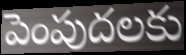
పెంపుదలకు